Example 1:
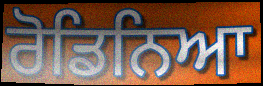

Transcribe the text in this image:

ਰੋਡਿਨਿਆ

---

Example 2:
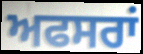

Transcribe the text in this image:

ਅਫਸਰਾਂ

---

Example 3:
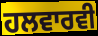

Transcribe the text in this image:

ਹਲਵਾਰਵੀ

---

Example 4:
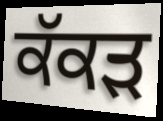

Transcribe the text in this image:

ਕੱਕੜ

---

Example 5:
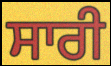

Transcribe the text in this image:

ਸਾਰੀ